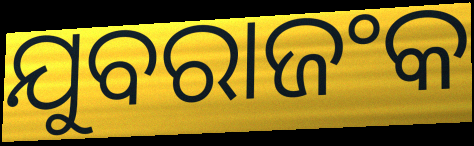
ଯୁବରାଜଂକ